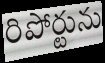
రిపోర్టును